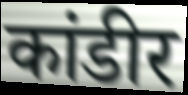
कांडीर